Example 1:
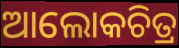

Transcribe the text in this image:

ଆଲୋକଚିତ୍ର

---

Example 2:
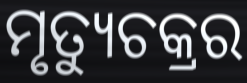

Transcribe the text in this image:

ମୃତ୍ୟୁଚକ୍ରର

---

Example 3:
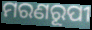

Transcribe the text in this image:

ମରଣରୂପୀ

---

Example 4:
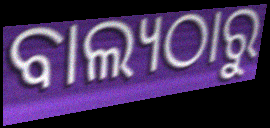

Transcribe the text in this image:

ବାଲ୍ୟଠାରୁ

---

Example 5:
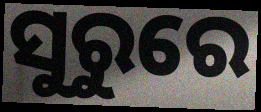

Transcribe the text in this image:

ସୁରୁରେ